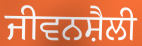
ਜੀਵਨਸ਼ੈਲੀ